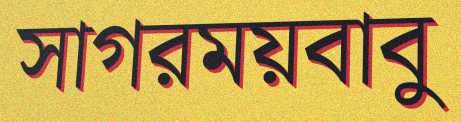
সাগরময়বাবু